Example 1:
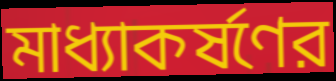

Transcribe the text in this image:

মাধ্যাকর্ষণের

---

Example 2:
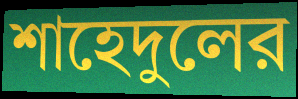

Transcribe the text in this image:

শাহেদুলের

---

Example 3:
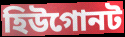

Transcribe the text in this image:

হিউগোনট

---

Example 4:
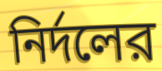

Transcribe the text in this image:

নির্দলের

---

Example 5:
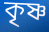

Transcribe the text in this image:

কৃষ্ণ